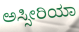
ಅಸ್ಸೀರಿಯಾ